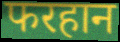
फरहान